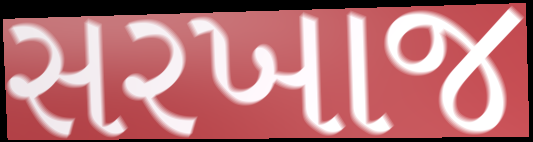
સરખાજ